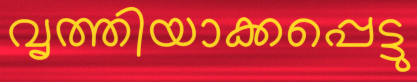
വൃത്തിയാക്കപ്പെട്ടു